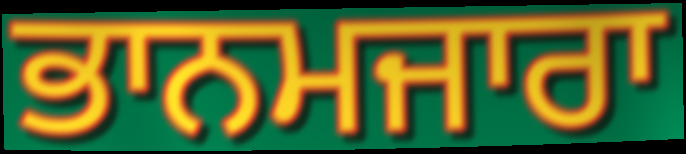
ਭਾਨਮਜਾਰਾ